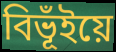
বিভূঁইয়ে